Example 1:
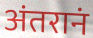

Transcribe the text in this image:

अंतरानं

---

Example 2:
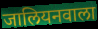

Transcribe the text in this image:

जालियनवाला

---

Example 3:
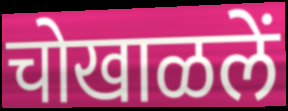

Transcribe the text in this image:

चोखाळलें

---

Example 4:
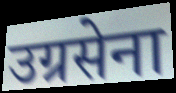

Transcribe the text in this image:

उग्रसेना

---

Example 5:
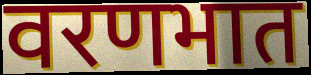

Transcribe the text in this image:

वरणभात